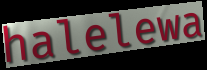
halelewa